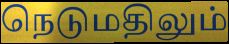
நெடுமதிலும்